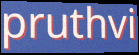
pruthvi